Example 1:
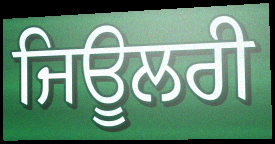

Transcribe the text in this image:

ਜਿਊਲਰੀ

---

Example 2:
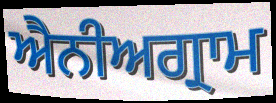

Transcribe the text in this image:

ਐਨੀਅਗ੍ਰਾਮ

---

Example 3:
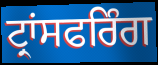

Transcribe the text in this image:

ਟ੍ਰਾਂਸਫਰਿੰਗ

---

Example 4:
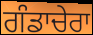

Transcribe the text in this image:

ਗੰਡਾਚੇਰਾ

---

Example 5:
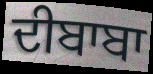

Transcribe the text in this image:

ਦੀਬਾਬਾ